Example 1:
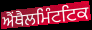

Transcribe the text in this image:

ਐਂਥੈਲਮਿੰਟਟਿਕ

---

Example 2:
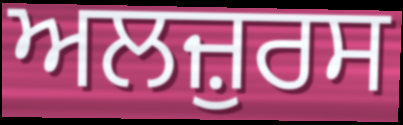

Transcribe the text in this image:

ਅਲਜ਼ੁਰਸ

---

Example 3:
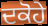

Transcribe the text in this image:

ਦਕੋਹੇ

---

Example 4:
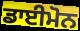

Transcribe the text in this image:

ਡਾਈਮੋਨ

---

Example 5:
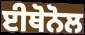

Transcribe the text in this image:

ਈਥੋਨੋਲ